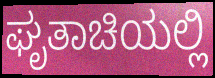
ಘೃತಾಚಿಯಲ್ಲಿ